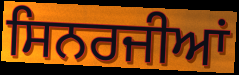
ਸਿਨਰਜੀਆਂ